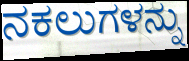
ನಕಲುಗಳನ್ನು